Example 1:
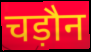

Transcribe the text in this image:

चड़ौन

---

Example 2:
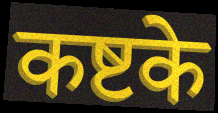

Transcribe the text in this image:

कष्टके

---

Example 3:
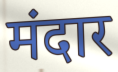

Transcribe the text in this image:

मंदार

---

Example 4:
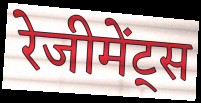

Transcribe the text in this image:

रेजीमेंट्स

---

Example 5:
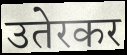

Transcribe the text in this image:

उतेरकर